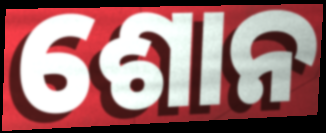
ଶୋନ